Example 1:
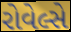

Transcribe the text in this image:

રોવેલ્સે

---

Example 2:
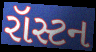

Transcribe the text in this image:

રૉસ્ટન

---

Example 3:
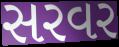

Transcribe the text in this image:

સરવર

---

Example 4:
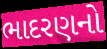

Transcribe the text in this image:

ભાદરણનો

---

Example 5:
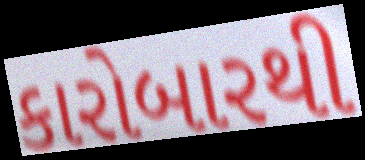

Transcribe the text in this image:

કારોબારથી